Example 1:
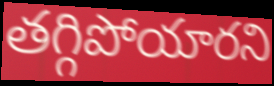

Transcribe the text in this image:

తగ్గిపోయారని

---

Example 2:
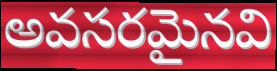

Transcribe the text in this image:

అవసరమైనవి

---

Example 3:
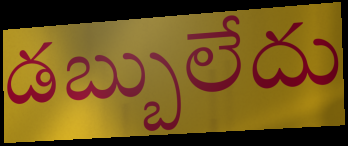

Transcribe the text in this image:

డబ్బులేదు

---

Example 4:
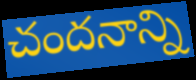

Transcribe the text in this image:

చందనాన్ని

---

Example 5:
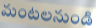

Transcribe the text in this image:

మంటలనుండి